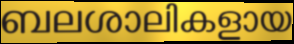
ബലശാലികളായ